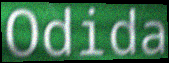
Odida